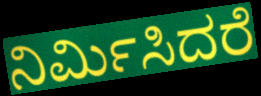
ನಿರ್ಮಿಸಿದರೆ